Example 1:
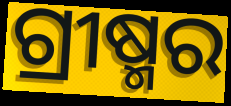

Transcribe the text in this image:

ଗ୍ରୀଷ୍ମର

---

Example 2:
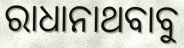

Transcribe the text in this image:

ରାଧାନାଥବାବୁ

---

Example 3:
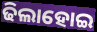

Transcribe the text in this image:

ଢିଲାହୋଇ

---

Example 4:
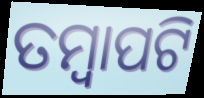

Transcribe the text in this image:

ତମ୍ବାପଟି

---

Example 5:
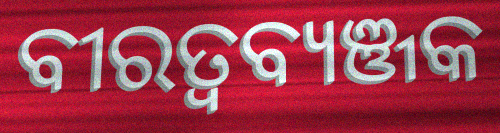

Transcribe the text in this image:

ବୀରତ୍ବବ୍ୟଞ୍ଜକ